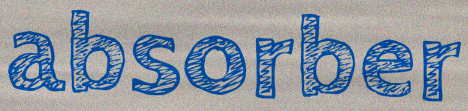
absorber